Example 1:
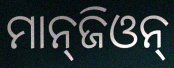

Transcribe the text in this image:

ମାନ୍‌ଜିଓନ୍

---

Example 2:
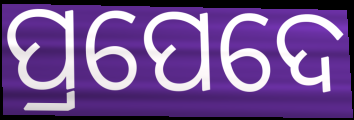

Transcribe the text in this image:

ପ୍ରପେଦେ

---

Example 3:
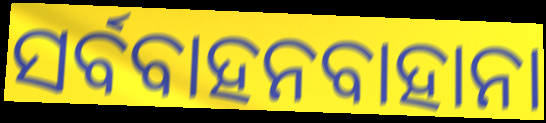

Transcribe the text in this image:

ସର୍ବବାହନବାହାନା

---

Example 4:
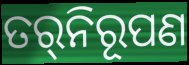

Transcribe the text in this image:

ତର୍‌ନିରୂପଣ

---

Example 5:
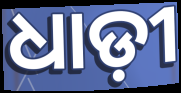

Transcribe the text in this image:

ଧାଡ଼ୀ